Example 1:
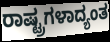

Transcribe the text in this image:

ರಾಷ್ಟ್ರಗಳಾದ್ಯಂತ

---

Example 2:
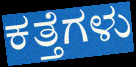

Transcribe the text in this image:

ಕತ್ತೆಗಳು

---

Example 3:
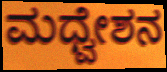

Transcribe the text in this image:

ಮಧ್ವೇಶನ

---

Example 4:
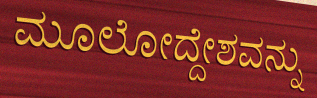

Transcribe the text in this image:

ಮೂಲೋದ್ದೇಶವನ್ನು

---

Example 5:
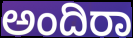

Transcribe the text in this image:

ಅಂದಿರಾ